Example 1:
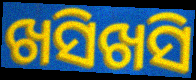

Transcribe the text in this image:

ଖସିଖସି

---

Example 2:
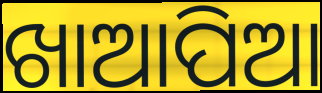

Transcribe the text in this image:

ଖାଆପିଆ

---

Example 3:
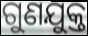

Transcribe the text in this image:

ଗୁଣଯୁକ୍ତ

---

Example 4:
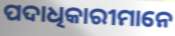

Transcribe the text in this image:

ପଦାଧିକାରୀମାନେ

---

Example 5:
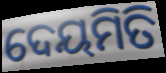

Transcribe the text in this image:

ଦେୟମିତି